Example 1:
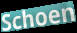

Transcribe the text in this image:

Schoen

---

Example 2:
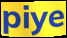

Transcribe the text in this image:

piye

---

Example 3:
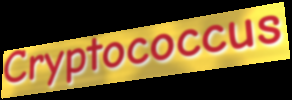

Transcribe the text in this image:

Cryptococcus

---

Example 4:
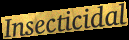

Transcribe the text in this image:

Insecticidal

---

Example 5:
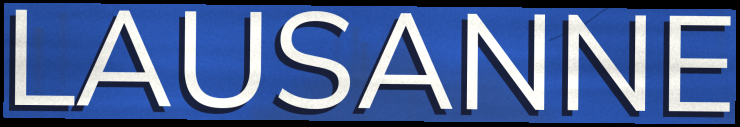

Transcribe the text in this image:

LAUSANNE